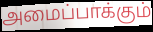
அமைப்பாக்கும்